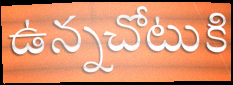
ఉన్నచోటుకి